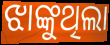
ଝାଙ୍କୁଥିଲା